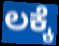
ಲಕ್ಕೆ